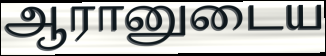
ஆரானுடைய